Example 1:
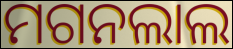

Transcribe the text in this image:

ମଗନଲାଲ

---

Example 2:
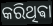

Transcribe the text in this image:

କରିଥିଵା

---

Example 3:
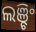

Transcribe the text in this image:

ଲଞ୍ଚିଂ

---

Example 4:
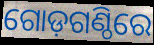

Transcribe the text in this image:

ଗୋଡ଼ଗଣ୍ଠିରେ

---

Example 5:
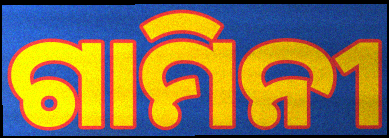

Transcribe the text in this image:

ଗାମିନୀ